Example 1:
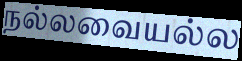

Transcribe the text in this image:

நல்லவையல்ல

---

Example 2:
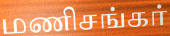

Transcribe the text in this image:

மணிசங்கர்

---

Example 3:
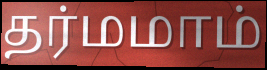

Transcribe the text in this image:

தர்மமாம்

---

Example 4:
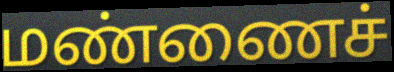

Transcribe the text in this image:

மண்ணைச்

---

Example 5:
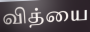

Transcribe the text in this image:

வித்யை